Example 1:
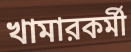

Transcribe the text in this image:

খামারকর্মী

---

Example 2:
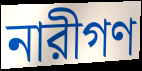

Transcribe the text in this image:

নারীগণ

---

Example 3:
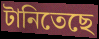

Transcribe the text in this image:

টানিতেছে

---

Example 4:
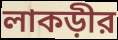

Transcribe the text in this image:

লাকড়ীর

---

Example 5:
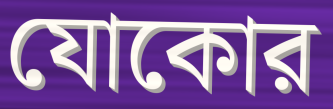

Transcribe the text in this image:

যোকোর